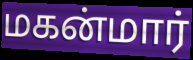
மகன்மார்